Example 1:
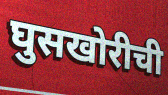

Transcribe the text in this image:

घुसखोरीची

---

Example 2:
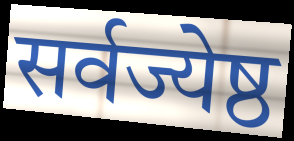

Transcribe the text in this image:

सर्वज्येष्ठ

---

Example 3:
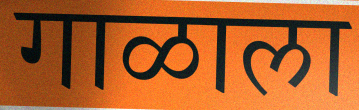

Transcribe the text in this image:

गाळाला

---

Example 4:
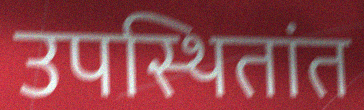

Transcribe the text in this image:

उपस्थितांत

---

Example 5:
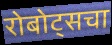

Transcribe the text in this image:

रोबोट्सचा